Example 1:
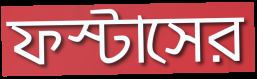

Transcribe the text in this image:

ফস্টাসের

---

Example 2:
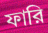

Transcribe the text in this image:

ফারি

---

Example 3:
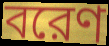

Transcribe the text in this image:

বরেণ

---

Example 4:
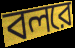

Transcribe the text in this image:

বলরে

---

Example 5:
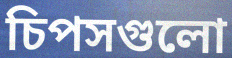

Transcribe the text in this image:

চিপসগুলো